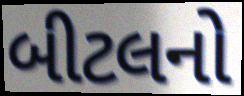
બીટલનો